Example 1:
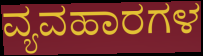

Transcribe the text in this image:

ವ್ಯವಹಾರಗಳ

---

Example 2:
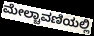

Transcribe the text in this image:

ಮೇಲ್ಚಾವಣಿಯಲ್ಲಿ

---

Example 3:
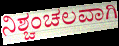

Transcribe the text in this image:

ನಿಶ್ಚಂಚಲವಾಗಿ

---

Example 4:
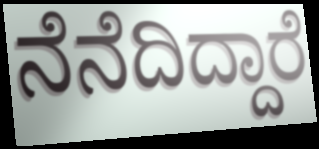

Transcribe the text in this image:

ನೆನೆದಿದ್ದಾರೆ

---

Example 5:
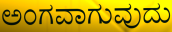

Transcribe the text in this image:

ಅಂಗವಾಗುವುದು